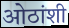
ओठांशी